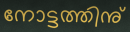
നോട്ടത്തിനു്